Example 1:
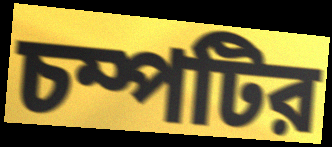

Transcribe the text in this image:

চম্পটির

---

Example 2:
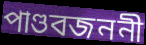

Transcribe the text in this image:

পাণ্ডবজননী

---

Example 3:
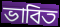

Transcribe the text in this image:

ভাবিত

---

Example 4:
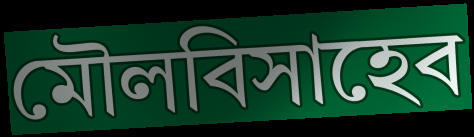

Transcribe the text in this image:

মৌলবিসাহেব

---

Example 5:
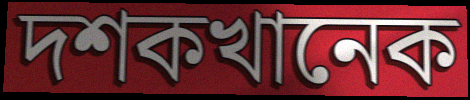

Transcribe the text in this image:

দশকখানেক